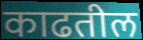
काढतील